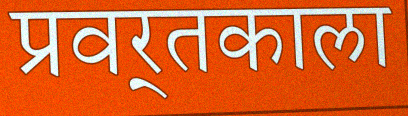
प्रवर्तकाला